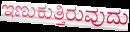
ಇಣುಕುತ್ತಿರುವುದು